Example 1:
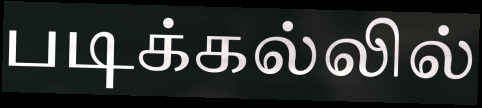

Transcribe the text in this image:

படிக்கல்லில்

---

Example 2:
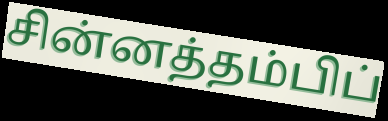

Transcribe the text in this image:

சின்னத்தம்பிப்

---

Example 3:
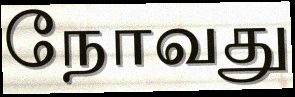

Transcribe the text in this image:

நோவது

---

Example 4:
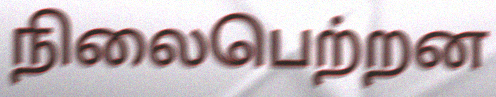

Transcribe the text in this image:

நிலைபெற்றன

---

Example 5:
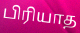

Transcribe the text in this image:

பிரியாத